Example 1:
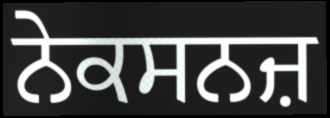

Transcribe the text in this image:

ਨੇਕਸਨਜ਼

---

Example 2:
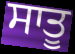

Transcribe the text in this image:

ਸਾਤੂ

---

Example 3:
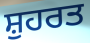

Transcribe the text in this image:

ਸ਼ੁਹਰਤ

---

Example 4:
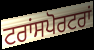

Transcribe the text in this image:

ਟਰਾਂਸਪੋਰਟਰਾਂ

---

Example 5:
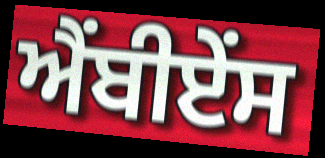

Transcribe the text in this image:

ਐਂਬੀਏਂਸ